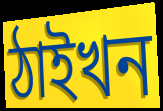
ঠাইখন